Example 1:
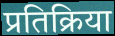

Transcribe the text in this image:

प्रतिक्रिया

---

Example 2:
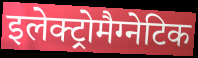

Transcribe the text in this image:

इलेक्ट्रोमैग्नेटिक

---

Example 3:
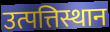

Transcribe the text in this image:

उत्पत्तिस्थान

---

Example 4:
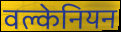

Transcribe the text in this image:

वल्केनियन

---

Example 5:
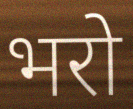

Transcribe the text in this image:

भरो